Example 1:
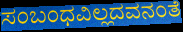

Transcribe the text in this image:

ಸಂಬಂಧವಿಲ್ಲದವನಂತೆ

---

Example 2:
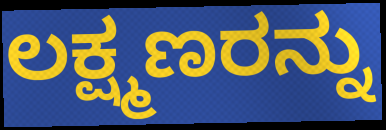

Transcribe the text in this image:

ಲಕ್ಷ್ಮಣರನ್ನು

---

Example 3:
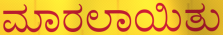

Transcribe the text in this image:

ಮಾರಲಾಯಿತು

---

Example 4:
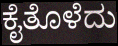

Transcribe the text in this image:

ಕೈತೊಳೆದು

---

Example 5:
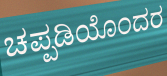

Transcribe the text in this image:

ಚಪ್ಪಡಿಯೊಂದರ